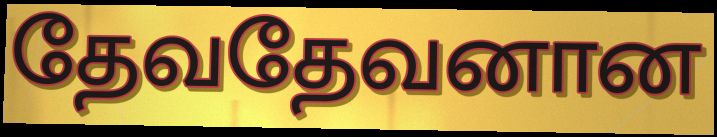
தேவதேவனான